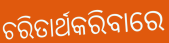
ଚରିତାର୍ଥକରିବାରେ